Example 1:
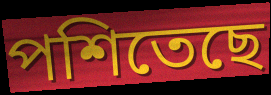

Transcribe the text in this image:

পশিতেছে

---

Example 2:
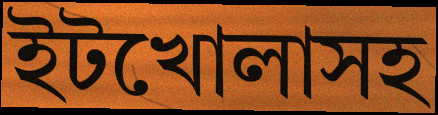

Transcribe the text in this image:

ইটখোলাসহ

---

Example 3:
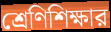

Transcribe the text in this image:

শ্রেণিশিক্ষার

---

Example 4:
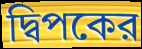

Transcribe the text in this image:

দ্বিপকের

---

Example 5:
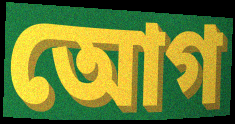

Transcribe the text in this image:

আেগ